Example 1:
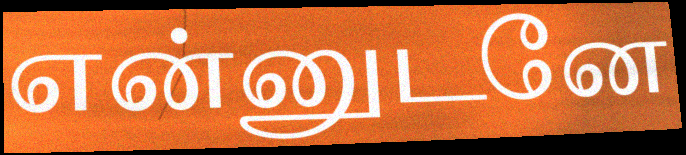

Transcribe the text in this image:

என்னுடனே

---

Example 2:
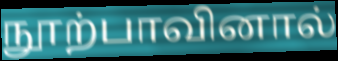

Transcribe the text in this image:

நூற்பாவினால்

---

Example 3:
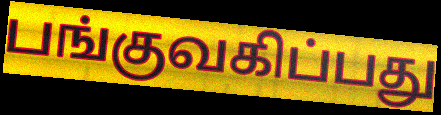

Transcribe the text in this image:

பங்குவகிப்பது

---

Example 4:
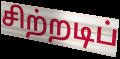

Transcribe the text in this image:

சிற்றடிப்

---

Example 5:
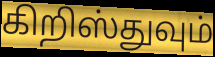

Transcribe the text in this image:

கிறிஸ்துவும்